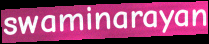
swaminarayan